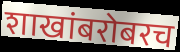
शाखांबरोबरच